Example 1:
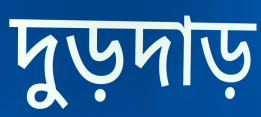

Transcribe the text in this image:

দুড়দাড়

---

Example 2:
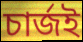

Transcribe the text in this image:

চার্জই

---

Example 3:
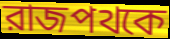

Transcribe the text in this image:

রাজপথকে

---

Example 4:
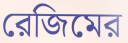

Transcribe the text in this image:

রেজিমের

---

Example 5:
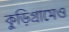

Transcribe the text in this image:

কুড়িগ্রামেও